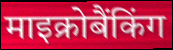
माइक्रोबैंकिंग